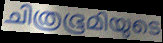
ചിത്രഭൂമിയുടെ